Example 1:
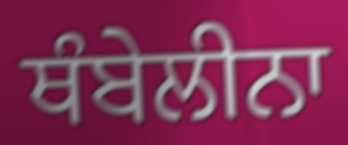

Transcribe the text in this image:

ਥੰਬੇਲੀਨਾ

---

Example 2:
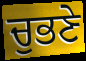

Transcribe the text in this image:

ਚੁਭਣੇ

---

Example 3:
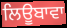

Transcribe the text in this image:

ਲਿਊਬਾਵਾ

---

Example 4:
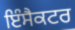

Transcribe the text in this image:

ਇੰਸੈਕਟਰ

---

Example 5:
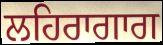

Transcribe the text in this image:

ਲਹਿਰਾਗਾਗ